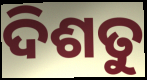
ଦିଶତୁ